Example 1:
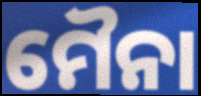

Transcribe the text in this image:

ମୈନା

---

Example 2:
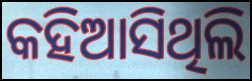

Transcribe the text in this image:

କହିଆସିଥିଲି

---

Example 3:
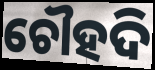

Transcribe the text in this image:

ଚୌହଦି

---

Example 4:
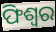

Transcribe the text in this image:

ଫିଶ୍ୱର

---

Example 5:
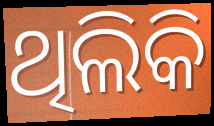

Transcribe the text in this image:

ଥିଲିକି